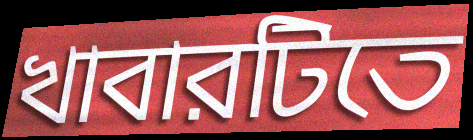
খাবারটিতে